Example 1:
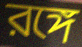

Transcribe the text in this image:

রঙ্গে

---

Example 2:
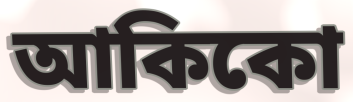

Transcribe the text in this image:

আকিকো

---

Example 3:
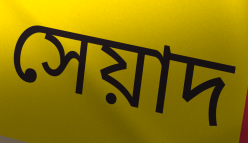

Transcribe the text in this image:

সেয়াদ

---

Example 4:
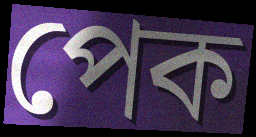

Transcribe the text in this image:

পেক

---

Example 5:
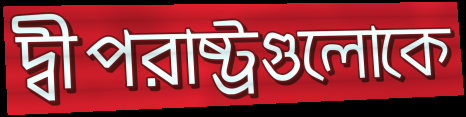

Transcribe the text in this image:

দ্বীপরাষ্ট্রগুলোকে